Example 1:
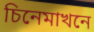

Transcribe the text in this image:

চিনেমাখনে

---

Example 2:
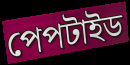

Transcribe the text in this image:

পেপটাইড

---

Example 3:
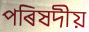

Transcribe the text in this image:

পৰিষদীয়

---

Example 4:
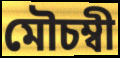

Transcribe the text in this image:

মৌচম্বী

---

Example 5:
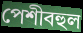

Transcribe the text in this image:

পেশীবহুল